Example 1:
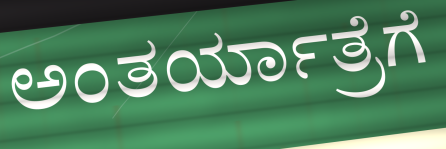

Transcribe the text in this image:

ಅಂತರ್ಯಾತ್ರೆಗೆ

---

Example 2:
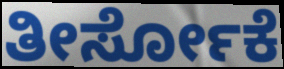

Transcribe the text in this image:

ತೀರ್ಸೋಕೆ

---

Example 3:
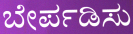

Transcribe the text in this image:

ಬೇರ್ಪಡಿಸು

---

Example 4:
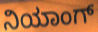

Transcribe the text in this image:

ನಿಯಾಂಗ್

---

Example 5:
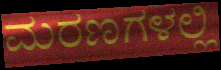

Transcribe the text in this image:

ಮರಣಗಳಲ್ಲಿ